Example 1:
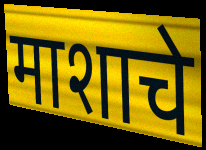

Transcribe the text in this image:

माशाचे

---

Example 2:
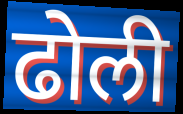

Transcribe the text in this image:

ढोली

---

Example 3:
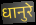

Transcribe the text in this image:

धानुरे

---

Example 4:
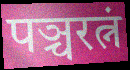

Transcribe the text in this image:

पञ्चरत्नं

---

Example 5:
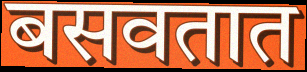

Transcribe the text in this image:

बसवतात